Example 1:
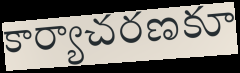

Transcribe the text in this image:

కార్యాచరణకూ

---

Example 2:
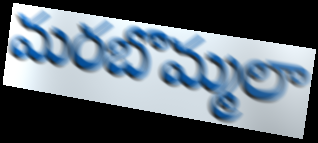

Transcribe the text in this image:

మరబొమ్మలా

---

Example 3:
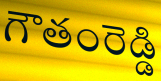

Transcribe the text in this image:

గౌతంరెడ్డి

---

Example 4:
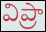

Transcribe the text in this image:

విప్రా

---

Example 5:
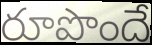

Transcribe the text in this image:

రూపొందే